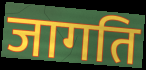
जागति